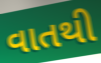
વાતથી